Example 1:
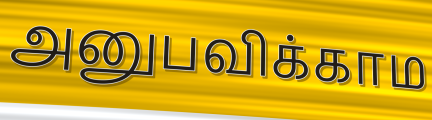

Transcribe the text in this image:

அனுபவிக்காம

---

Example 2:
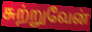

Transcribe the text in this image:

சுற்றுவேன்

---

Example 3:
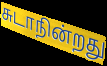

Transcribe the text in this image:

சுடாநின்றது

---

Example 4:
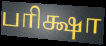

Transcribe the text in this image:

பரிக்ஷா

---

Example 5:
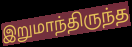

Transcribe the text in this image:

இறுமாந்திருந்த